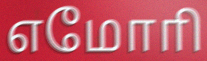
எமோரி